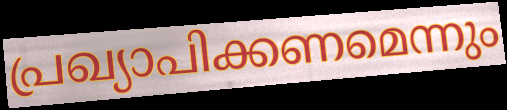
പ്രഖ്യാപിക്കണമെന്നും